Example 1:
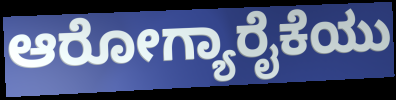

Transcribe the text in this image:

ಆರೋಗ್ಯಾರೈಕೆಯು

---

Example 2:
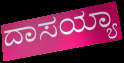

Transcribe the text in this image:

ದಾಸಯ್ಯಾ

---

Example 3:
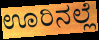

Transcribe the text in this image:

ಊರಿನಲ್ಲೆ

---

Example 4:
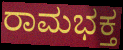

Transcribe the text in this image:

ರಾಮಭಕ್ತ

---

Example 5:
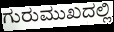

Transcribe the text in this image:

ಗುರುಮುಖದಲ್ಲಿ